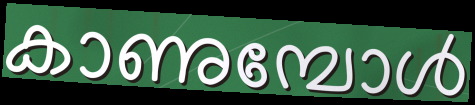
കാണുമ്പോൾ